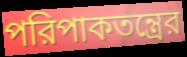
পরিপাকতন্ত্রের